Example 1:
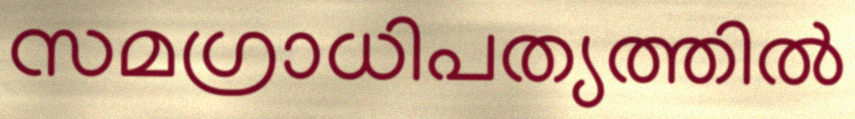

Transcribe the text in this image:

സമഗ്രാധിപത്യത്തിൽ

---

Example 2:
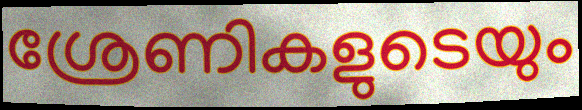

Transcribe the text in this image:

ശ്രേണികളുടെയും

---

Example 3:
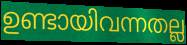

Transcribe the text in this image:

ഉണ്ടായിവന്നതല്ല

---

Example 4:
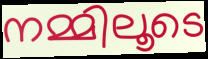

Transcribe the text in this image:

നമ്മിലൂടെ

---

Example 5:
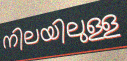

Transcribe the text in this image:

നിലയിലുള്ള